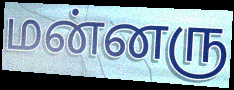
மன்னரு